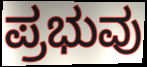
ಪ್ರಭುವು